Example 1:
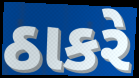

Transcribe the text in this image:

ઠાકરે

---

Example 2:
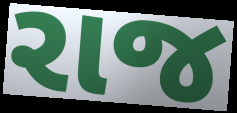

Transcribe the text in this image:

રાજ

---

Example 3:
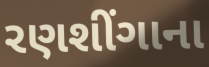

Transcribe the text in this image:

રણશીંગાના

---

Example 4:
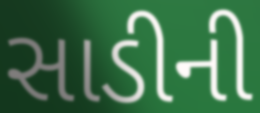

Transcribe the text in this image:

સાડીની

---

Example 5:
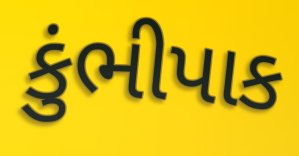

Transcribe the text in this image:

કુંભીપાક